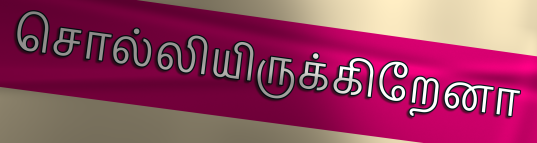
சொல்லியிருக்கிறேனா